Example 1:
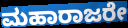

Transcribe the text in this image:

ಮಹಾರಾಜರೇ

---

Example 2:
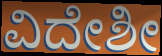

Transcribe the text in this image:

ವಿದೇಶೀ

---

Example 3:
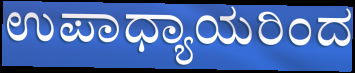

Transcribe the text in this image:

ಉಪಾಧ್ಯಾಯರಿಂದ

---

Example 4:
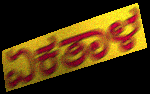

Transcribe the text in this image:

ಏಕತಾಳ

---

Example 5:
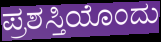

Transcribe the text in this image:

ಪ್ರಶಸ್ತಿಯೊಂದು